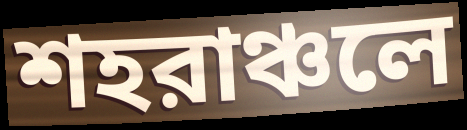
শহরাঞ্চলে